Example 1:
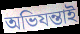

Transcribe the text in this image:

অভিযন্তাই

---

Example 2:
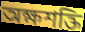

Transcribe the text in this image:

অক্ষশক্তি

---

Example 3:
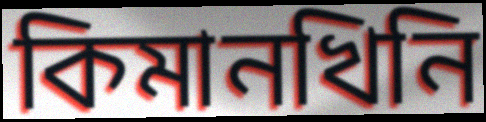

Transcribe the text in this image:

কিমানখিনি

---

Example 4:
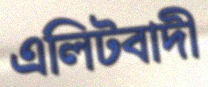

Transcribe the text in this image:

এলিটবাদী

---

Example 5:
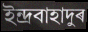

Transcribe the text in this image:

ইন্দ্ৰবাহাদুৰ